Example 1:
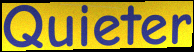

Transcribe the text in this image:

Quieter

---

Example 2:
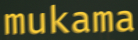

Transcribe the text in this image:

mukama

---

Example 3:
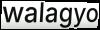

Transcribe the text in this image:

walagyo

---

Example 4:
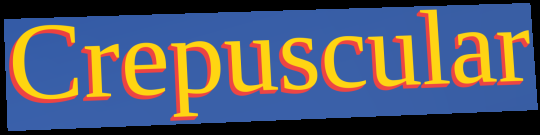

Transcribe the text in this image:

Crepuscular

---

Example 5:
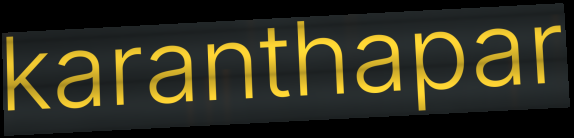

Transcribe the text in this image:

karanthapar